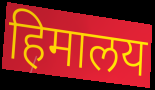
हिमालय